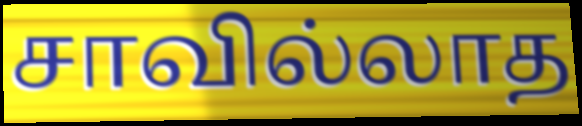
சாவில்லாத